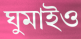
ঘুমাইও